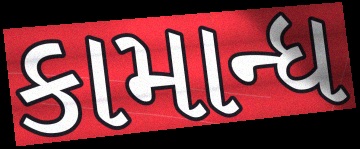
કામાન્ધ